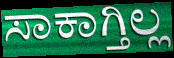
ಸಾಕಾಗ್ತಿಲ್ಲ